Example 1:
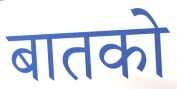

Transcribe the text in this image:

बातको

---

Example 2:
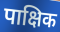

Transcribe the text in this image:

पाक्षिक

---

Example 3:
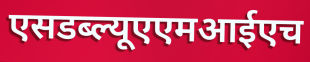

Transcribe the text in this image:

एसडब्ल्यूएएमआईएच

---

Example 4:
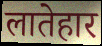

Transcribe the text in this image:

लातेहार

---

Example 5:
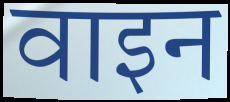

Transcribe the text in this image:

वाइन